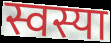
स्वस्या